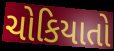
ચોકિયાતો